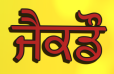
ਜੈਕਡੌ